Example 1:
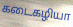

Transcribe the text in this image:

கடைகழியா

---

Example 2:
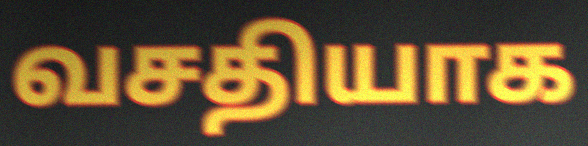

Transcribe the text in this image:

வசதியாக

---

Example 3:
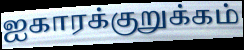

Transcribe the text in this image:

ஐகாரக்குறுக்கம்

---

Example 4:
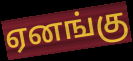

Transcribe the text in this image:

ஏனங்கு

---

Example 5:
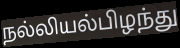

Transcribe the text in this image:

நல்லியல்பிழந்து